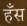
हँस